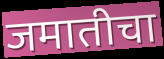
जमातीचा